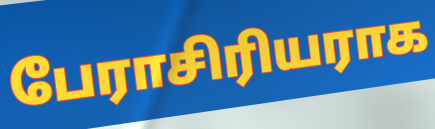
பேராசிரியராக